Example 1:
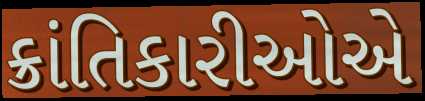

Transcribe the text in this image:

ક્રાંતિકારીઓએ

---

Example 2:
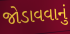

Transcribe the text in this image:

જોડાવવાનું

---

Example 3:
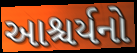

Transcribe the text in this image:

આશ્ચર્યનો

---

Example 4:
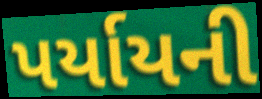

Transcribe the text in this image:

પર્યાયની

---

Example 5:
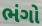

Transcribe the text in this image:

ભંગો